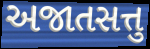
અજાતસત્તુ